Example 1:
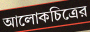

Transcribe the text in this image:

আলোকচিত্রের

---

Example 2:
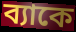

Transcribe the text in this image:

ব্যাকে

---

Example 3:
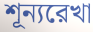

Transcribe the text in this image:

শূন্যরেখা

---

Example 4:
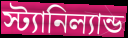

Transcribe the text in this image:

স্ট্যানিল্যান্ড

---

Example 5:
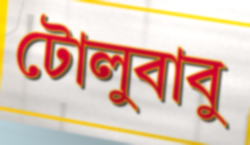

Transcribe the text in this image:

টোলুবাবু